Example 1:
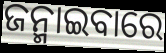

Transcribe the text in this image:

ଜନ୍ମାଇବାରେ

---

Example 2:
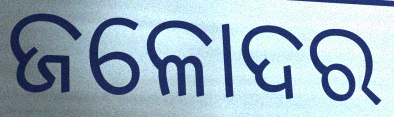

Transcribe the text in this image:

ଜଳୋଦର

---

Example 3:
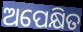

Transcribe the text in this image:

ଅପେକ୍ଷିତ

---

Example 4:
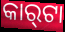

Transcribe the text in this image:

କାର୍‍ଟା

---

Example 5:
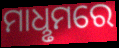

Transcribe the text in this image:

ମାଧୢମରେ